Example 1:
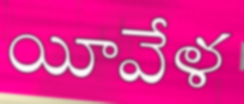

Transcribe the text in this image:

యీవేళ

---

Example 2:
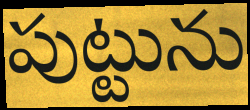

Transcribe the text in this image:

పుట్టును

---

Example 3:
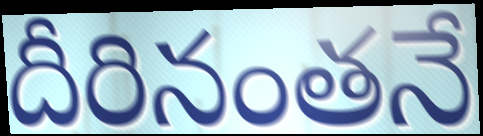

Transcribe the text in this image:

దీరినంతనే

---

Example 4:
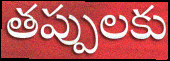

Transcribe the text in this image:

తప్పులకు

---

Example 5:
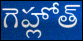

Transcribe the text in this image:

గెహ్లోత్